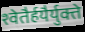
श्वेतैर्हयैर्युक्ते